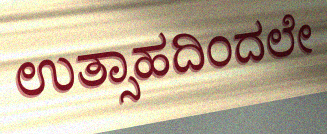
ಉತ್ಸಾಹದಿಂದಲೇ